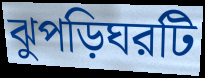
ঝুপড়িঘরটি